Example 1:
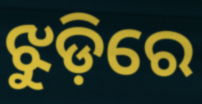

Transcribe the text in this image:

ଝୁଡ଼ିରେ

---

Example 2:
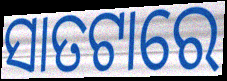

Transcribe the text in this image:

ସାତଟାରେ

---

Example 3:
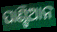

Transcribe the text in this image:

ପାଣ୍ଡିଆନ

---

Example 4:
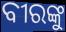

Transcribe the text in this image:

ବୀରଙ୍କୁ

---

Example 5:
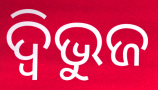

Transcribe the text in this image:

ଦ୍ଵିଭୁଜ